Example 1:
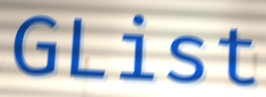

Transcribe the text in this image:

GList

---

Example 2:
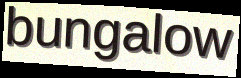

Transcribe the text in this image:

bungalow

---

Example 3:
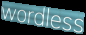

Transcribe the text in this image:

wordless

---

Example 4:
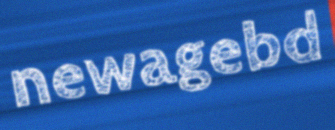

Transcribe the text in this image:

newagebd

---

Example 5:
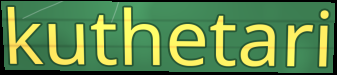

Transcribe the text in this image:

kuthetari